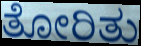
ತೋರಿತು